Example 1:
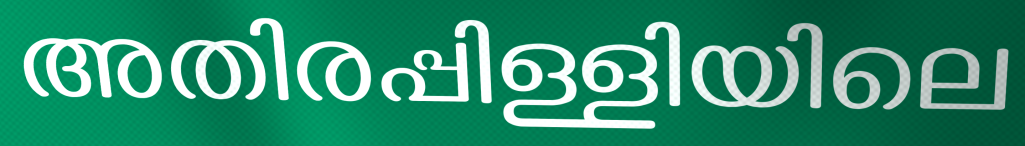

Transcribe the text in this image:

അതിരപ്പിള്ളിയിലെ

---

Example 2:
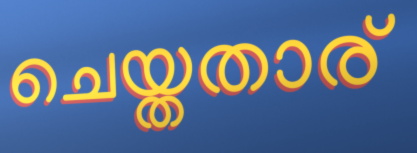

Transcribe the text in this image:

ചെയ്തതാര്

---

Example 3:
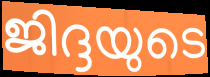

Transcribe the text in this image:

ജിദ്ദയുടെ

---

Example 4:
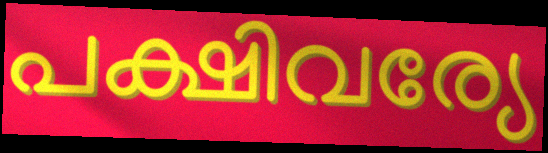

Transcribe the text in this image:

പക്ഷിവര്യേ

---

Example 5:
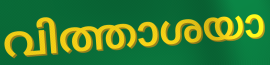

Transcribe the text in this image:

വിത്താശയാ